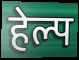
हेल्प